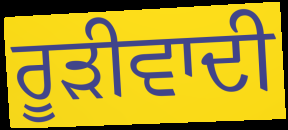
ਰੂੜੀਵਾਦੀ